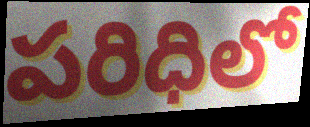
పరిధిలో